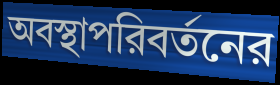
অবস্থাপরিবর্তনের